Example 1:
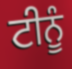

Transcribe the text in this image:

ਟੀਨੂੰ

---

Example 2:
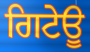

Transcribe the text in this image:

ਗਿਟੇਊ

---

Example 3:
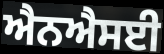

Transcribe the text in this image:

ਐਨਐਸਈ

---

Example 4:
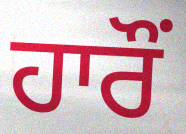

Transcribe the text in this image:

ਹਾਰੌਂ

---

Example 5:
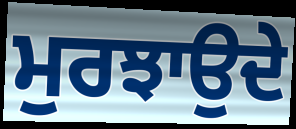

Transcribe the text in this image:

ਮੁਰਝਾਉਦੇ